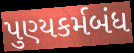
પુણ્યકર્મબંધ